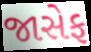
જાસેફ